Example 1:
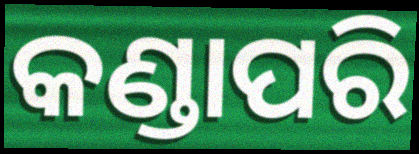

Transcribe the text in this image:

କଣ୍ଡାପରି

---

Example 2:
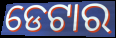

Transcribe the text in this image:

ଡେଟାର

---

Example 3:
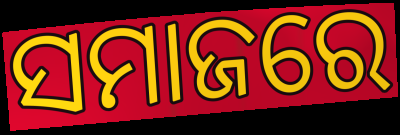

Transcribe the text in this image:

ସମାଜରେ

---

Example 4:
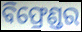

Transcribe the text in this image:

ବିଫ୍ରେଣ୍ଡର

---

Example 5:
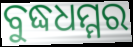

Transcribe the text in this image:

ବୁଦ୍ଧଧମ୍ମର